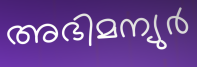
അഭിമന്യുർ